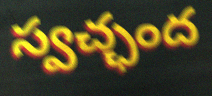
స్వచ్ఛంద